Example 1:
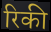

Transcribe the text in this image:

रिकी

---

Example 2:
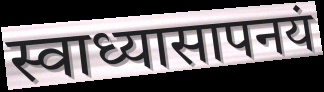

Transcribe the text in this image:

स्वाध्यासापनयं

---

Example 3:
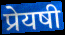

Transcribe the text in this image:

प्रेयषी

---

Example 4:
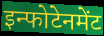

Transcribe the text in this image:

इन्फोटेनमेंट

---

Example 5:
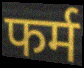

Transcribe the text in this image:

फर्म